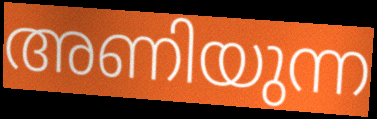
അണിയുന്ന